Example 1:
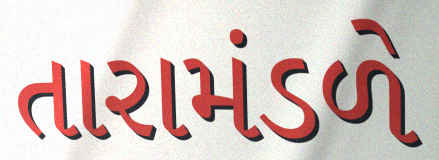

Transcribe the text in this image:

તારામંડળે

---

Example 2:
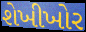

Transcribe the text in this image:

શેખીખોર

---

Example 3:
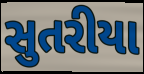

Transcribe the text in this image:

સુતરીયા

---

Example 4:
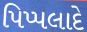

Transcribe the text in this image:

પિપ્પલાદે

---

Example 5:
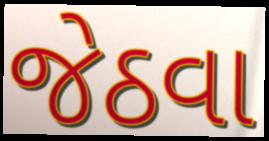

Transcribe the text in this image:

જેઠવા